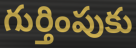
గుర్తింపుకు